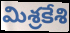
మిశ్రకేశి